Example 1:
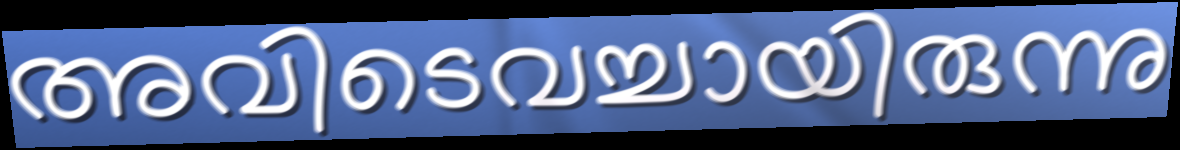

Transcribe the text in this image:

അവിടെവച്ചായിരുന്നു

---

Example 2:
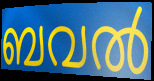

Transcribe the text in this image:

ബവൽ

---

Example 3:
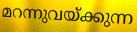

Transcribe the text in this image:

മറന്നുവയ്ക്കുന്ന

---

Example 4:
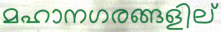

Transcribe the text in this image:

മഹാനഗരങ്ങളില്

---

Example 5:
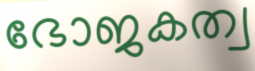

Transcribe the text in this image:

ഭോജകത്വ